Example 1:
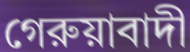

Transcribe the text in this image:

গেরুয়াবাদী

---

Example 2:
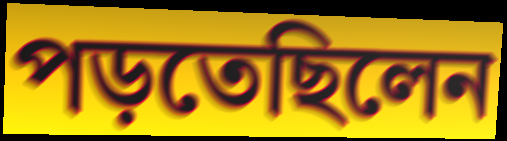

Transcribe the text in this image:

পড়তেছিলেন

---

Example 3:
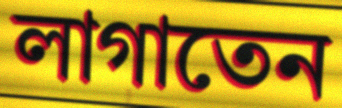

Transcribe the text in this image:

লাগাতেন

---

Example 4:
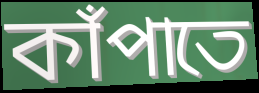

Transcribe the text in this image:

কাঁপাতে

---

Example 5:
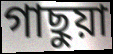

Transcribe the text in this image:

গাছুয়া